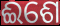
ଈଶେ